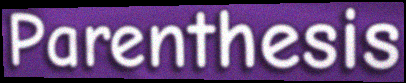
Parenthesis